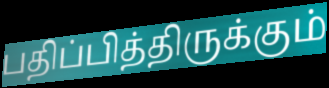
பதிப்பித்திருக்கும்